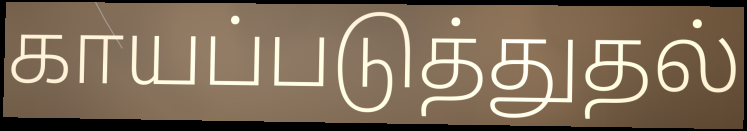
காயப்படுத்துதல்